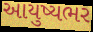
આયુષ્યભર